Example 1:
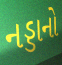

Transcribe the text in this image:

નડ્ડાનો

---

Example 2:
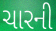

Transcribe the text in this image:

ચારની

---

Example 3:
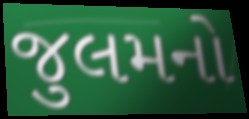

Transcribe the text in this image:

જુલમનો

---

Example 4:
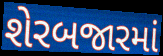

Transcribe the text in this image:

શેરબજારમાં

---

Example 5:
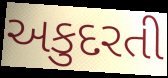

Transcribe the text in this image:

અકુદરતી